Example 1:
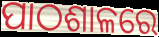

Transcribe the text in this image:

ପାଠଶାଳରେ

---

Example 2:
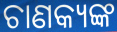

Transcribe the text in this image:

ଚାଣକ୍ୟଙ୍କ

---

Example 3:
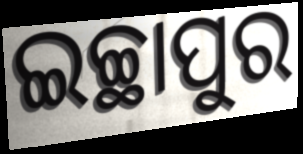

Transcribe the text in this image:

ଇଚ୍ଛାପୁର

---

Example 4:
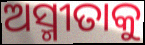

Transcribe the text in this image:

ଅସ୍ମୀତାକୁ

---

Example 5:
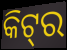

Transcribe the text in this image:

କିଟ୍‌ର